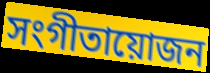
সংগীতায়োজন